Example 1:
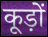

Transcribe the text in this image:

कूड़ों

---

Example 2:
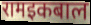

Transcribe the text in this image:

रामइकबाल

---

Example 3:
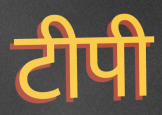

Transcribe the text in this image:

टीपी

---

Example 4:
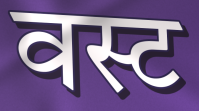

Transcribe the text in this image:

वस्ट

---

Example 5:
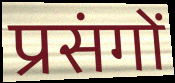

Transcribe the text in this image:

प्रसंगों